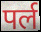
पर्ल